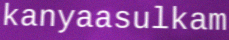
kanyaasulkam